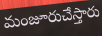
మంజూరుచేస్తారు